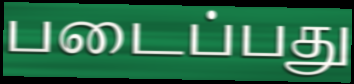
படைப்பது